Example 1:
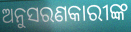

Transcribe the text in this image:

ଅନୁସରଣକାରୀଙ୍କ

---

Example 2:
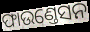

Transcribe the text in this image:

ଫାଉଣ୍ତେସନ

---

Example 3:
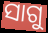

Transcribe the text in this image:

ସାଗୁ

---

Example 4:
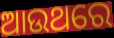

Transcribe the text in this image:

ଆଉଥରେ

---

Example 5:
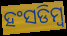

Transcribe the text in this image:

ହଂସଡିମ୍ବ